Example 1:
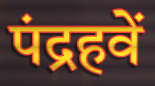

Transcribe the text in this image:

पंद्रहवें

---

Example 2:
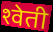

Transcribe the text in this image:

श्वेती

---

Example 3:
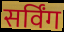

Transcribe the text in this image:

सर्विंग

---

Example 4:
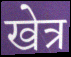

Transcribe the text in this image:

खेत्र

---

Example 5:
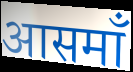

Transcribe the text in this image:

आसमाँ